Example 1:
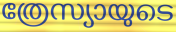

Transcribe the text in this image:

ത്രേസ്യായുടെ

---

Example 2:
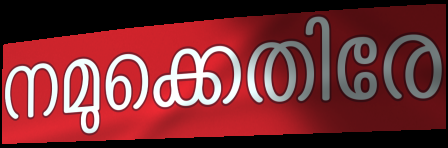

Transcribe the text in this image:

നമുക്കെതിരേ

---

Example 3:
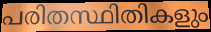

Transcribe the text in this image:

പരിതസ്ഥിതികളും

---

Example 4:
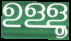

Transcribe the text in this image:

ഉള്ളൂ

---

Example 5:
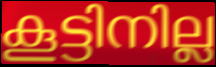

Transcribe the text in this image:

കൂട്ടിനില്ല